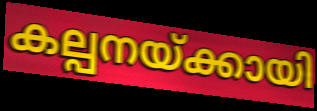
കല്പനയ്ക്കായി